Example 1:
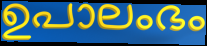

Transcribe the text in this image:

ഉപാലംഭം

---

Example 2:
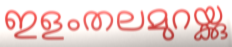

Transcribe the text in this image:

ഇളംതലമുറയ്ക്കു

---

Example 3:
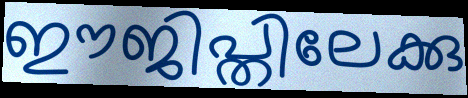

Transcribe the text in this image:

ഈജിപ്തിലേക്കു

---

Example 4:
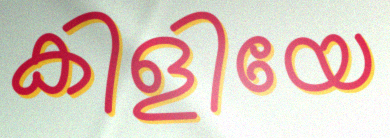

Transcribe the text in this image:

കിളിയേ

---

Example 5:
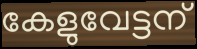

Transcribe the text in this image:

കേളുവേട്ടന്